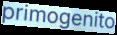
primogenito